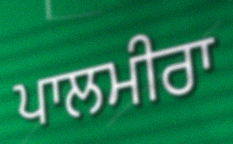
ਪਾਲਮੀਰਾ